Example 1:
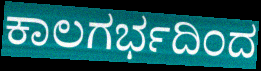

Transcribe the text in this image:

ಕಾಲಗರ್ಭದಿಂದ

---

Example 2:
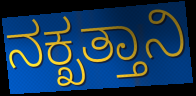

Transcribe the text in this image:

ನಕ್ಖತ್ತಾನಿ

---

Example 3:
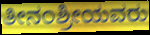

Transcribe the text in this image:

ತೀನಂಶ್ರೀಯವರು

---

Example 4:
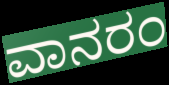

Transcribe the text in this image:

ವಾನರಂ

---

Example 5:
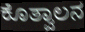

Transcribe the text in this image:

ಕೊತ್ವಾಲನ